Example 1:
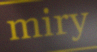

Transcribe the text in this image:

miry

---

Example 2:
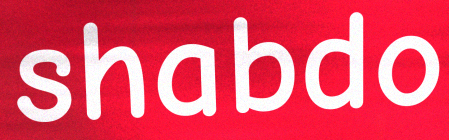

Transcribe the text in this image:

shabdo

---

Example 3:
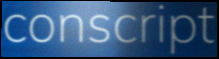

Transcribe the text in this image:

conscript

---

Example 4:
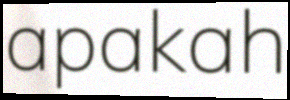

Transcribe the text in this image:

apakah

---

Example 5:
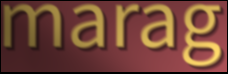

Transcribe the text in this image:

marag